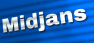
Midjans